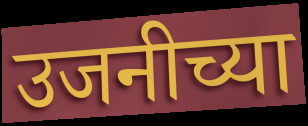
उजनीच्या